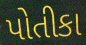
પોતીકા